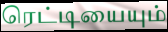
ரெட்டியையும்